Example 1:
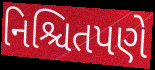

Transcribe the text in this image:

નિશ્ચિતપણે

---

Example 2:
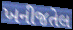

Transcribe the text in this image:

ખનીજતેલ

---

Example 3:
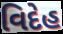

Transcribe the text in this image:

વિદેહ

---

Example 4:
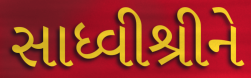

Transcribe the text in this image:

સાધ્વીશ્રીને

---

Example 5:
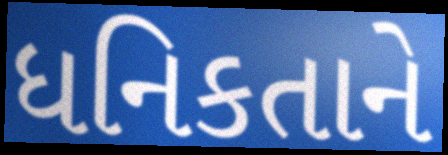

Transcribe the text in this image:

ધનિકતાને